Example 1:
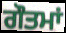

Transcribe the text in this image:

ਗੌਤਮਾਂ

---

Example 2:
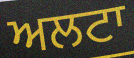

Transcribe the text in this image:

ਅਲਟਾ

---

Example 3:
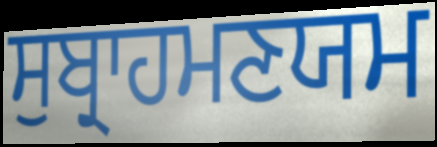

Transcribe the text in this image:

ਸੁਬ੍ਰਾਹਮਣਯਮ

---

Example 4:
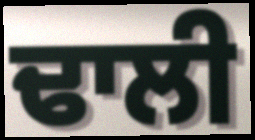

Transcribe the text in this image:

ਢਾਲੀ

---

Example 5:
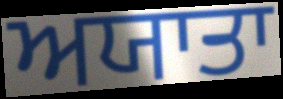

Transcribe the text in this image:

ਅਯਾਤਾ